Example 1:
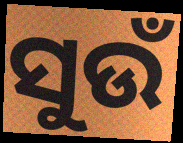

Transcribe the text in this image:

ସୁଉଁ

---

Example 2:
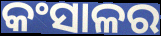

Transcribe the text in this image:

କଂସାଳର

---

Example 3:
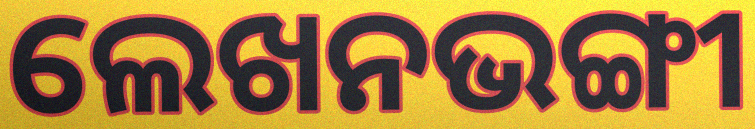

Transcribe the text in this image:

ଲେଖନଭଙ୍ଗୀ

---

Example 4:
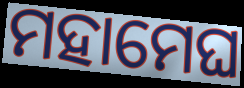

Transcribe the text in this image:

ମହାମେଘ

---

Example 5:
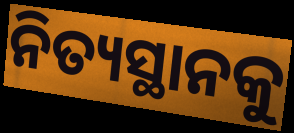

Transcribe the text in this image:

ନିତ୍ୟସ୍ଥାନକୁ